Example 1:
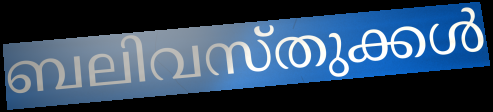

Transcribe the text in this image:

ബലിവസ്തുക്കൾ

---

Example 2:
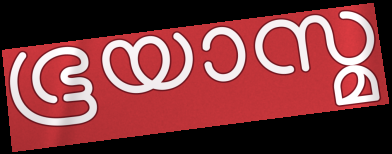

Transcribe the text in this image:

ഭൂയാസ്മ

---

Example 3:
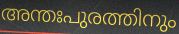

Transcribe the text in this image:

അന്തഃപുരത്തിനും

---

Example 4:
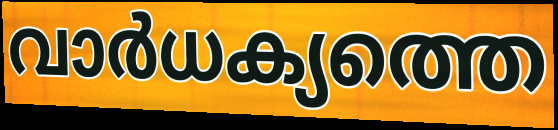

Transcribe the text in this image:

വാർധക്യത്തെ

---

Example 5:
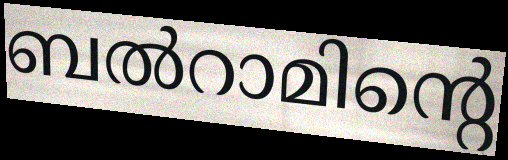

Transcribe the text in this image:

ബൽറാമിന്റെ